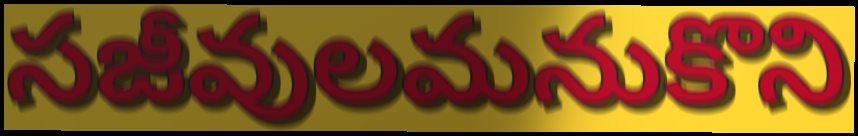
సజీవులమనుకొని